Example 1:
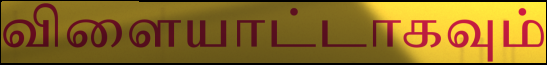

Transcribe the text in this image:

விளையாட்டாகவும்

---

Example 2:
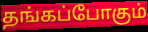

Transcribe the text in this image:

தங்கப்போகும்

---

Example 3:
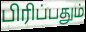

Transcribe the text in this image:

பிரிப்பதும்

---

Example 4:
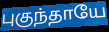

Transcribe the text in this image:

புகுந்தாயே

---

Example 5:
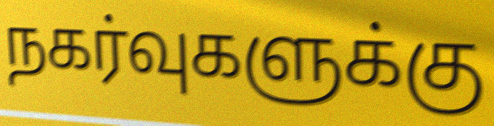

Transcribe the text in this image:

நகர்வுகளுக்கு